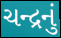
ચન્દ્રનું